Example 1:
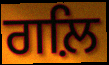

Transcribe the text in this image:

ਗਲ਼ਿ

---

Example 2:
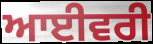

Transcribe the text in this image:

ਆਈਵਰੀ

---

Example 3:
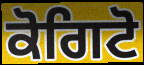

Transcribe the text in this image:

ਕੋਗਿਟੋ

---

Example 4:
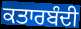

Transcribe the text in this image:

ਕਤਾਰਬੰਦੀ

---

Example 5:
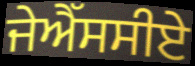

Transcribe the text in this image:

ਜੇਐੱਸਸੀਏ